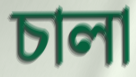
চালা